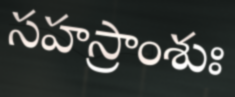
సహస్రాంశుః